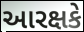
આરક્ષકે